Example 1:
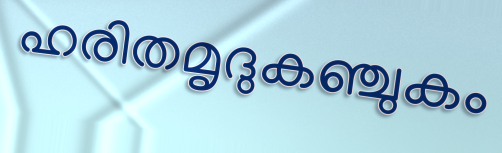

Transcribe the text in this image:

ഹരിതമൃദുകഞ്ചുകം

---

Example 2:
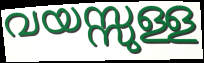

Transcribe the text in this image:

വയസ്സുള്ള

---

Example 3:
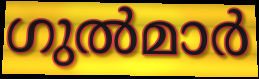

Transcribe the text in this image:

ഗുൽമാർ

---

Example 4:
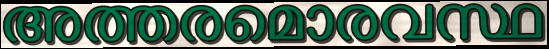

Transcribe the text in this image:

അത്തരമൊരവസ്ഥ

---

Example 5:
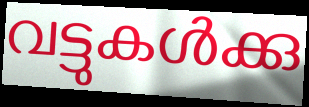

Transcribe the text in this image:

വട്ടുകൾക്കു